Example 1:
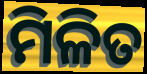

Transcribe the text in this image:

ମିଳିତ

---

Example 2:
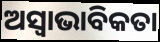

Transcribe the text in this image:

ଅସ୍ୱାଭାବିକତା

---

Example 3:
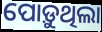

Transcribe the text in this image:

ପୋଡ଼ୁଥିଲା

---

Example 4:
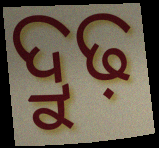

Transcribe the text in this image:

ଦ୍ରୁଢ଼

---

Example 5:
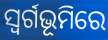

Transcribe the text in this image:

ସ୍ଵର୍ଗଭୂମିରେ